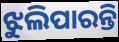
ଝୁଲିପାରନ୍ତି